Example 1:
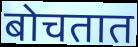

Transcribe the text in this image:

बोचतात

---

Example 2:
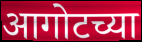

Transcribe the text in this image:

आगोटच्या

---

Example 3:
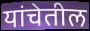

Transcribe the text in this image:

यांचेतील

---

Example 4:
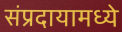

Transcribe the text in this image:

संप्रदायामध्ये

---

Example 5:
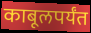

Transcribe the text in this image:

काबूलपर्यंत